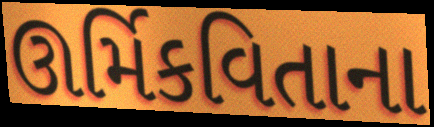
ઊર્મિકવિતાના